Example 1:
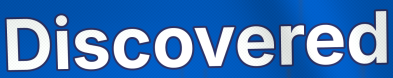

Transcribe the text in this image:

Discovered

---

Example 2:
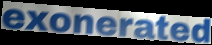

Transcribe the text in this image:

exonerated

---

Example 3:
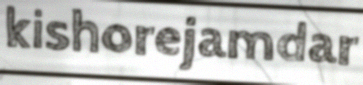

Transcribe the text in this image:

kishorejamdar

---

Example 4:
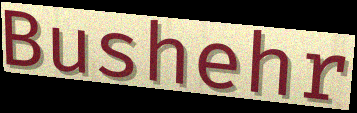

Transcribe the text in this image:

Bushehr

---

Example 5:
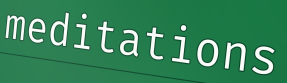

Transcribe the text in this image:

meditations